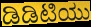
ಡಿಡಿಟಿಯು